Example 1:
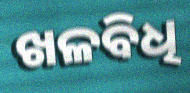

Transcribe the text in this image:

ଖଳବିଧି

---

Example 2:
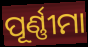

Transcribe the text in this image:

ପୂର୍ଣ୍ଣୀମା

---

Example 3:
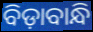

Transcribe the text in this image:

ବିଡ଼ାବାନ୍ଧି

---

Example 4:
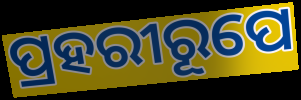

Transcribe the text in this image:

ପ୍ରହରୀରୂପେ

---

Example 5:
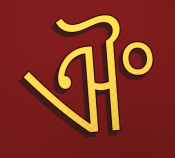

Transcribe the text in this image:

ଐଂ